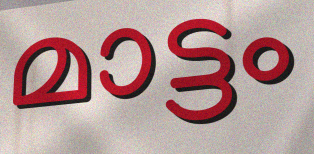
മാട്ടം